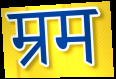
म्रम